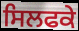
ਸਿਲਫਕੇ